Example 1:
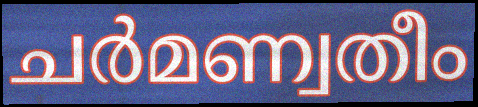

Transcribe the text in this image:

ചർമണ്വതീം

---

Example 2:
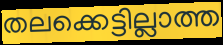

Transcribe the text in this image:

തലക്കെട്ടില്ലാത്ത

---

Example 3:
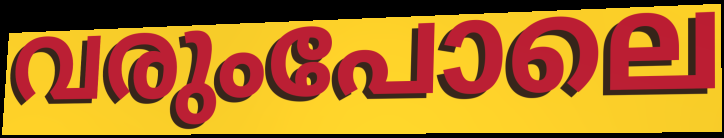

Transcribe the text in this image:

വരുംപോലെ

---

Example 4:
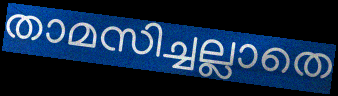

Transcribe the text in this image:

താമസിച്ചല്ലാതെ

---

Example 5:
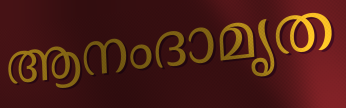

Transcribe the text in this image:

ആനംദാമൃത